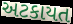
અટકાયત